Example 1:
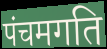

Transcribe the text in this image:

पंचमगति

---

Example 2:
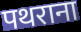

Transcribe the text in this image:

पथराना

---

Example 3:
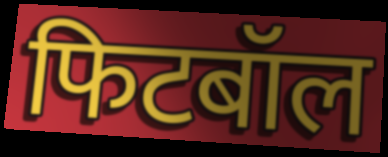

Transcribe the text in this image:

फिटबॉल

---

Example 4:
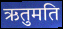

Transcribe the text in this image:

ऋतुमति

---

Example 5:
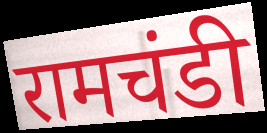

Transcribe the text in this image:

रामचंडी